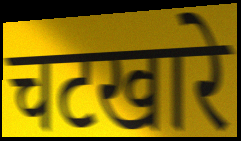
चटखारे